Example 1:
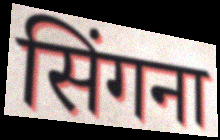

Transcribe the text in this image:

सिंगना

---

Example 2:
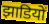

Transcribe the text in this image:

झाडियों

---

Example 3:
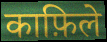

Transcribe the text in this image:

काफ़िले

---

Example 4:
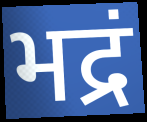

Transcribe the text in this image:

भद्रं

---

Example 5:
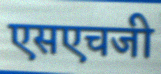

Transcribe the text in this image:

एसएचजी